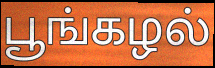
பூங்கழல்